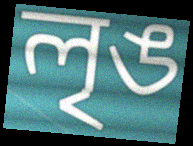
লৃঙ